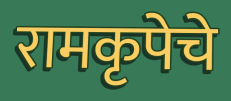
रामकृपेचे